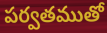
పర్వతముతో